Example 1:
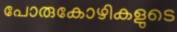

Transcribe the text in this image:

പോരുകോഴികളുടെ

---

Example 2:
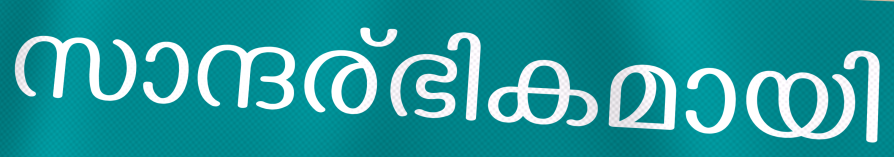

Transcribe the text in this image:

സാന്ദര്ഭികമായി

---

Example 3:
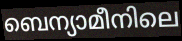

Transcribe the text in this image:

ബെന്യാമീനിലെ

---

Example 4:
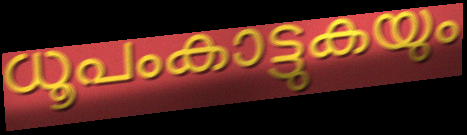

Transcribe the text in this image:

ധൂപംകാട്ടുകയും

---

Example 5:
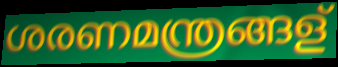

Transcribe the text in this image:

ശരണമന്ത്രങ്ങള്